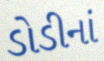
ડોડીનાં